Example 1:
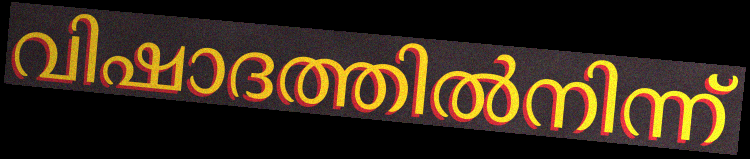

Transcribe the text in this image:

വിഷാദത്തിൽനിന്ന്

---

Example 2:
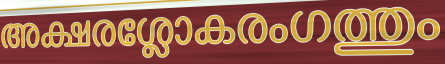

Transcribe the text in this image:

അക്ഷരശ്ലോകരംഗത്തും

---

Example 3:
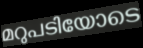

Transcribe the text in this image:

മറുപടിയോടെ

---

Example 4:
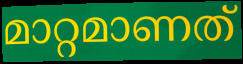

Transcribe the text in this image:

മാറ്റമാണത്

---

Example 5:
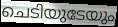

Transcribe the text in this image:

ചെടിയുടേയും